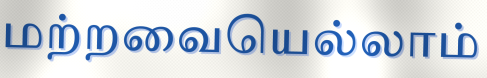
மற்றவையெல்லாம்